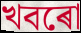
খবৰো